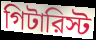
গিটারিস্ট